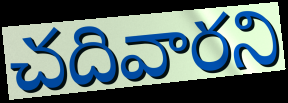
చదివారని